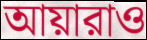
আয়ারাও